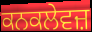
ਕਨਕਲੇਵਜ਼